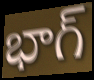
భాగ్